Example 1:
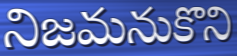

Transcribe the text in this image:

నిజమనుకొని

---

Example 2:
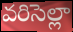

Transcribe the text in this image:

వరిసెల్లా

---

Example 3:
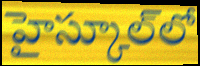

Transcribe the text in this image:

హైస్కూల్‌లో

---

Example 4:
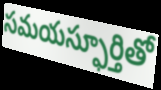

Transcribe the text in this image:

సమయస్ఫూర్తితో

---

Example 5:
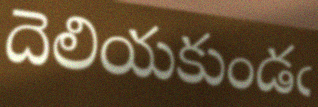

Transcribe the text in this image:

దెలియకుండఁ